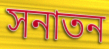
সনাতন